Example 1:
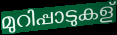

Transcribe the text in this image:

മുറിപ്പാടുകള്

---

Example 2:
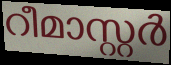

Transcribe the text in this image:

റീമാസ്റ്റർ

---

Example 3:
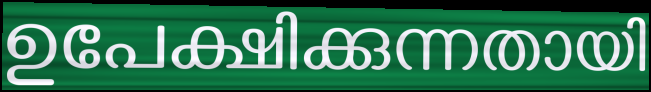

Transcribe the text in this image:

ഉപേക്ഷിക്കുന്നതായി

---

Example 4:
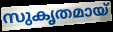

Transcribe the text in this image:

സുകൃതമായ്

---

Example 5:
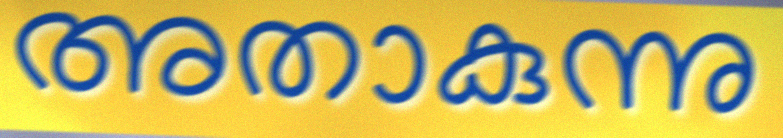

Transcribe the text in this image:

അതാകുന്നു